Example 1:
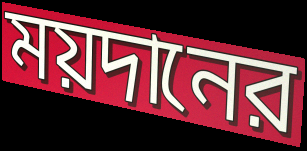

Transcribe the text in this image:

ময়দানের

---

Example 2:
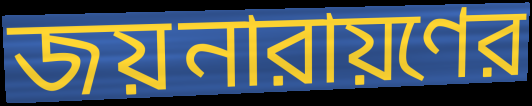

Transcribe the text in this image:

জয়নারায়ণের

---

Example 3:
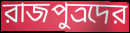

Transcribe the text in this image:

রাজপুত্রদের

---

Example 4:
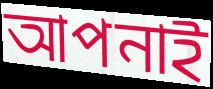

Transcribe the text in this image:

আপনাই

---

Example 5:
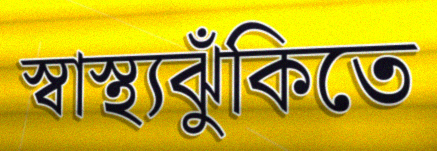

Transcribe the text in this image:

স্বাস্থ্যঝুঁকিতে